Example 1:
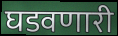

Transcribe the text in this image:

घडवणारी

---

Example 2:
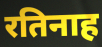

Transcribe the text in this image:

रतिनाह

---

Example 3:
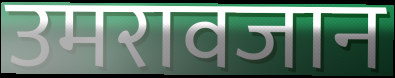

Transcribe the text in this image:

उमरावजान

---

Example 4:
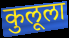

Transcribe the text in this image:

कुलूला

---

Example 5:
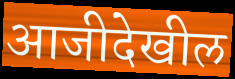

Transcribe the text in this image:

आजीदेखील